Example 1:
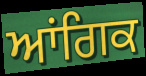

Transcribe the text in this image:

ਆਂਗਿਕ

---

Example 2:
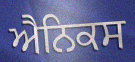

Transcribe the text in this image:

ਐਨਿਕਸ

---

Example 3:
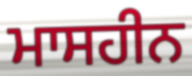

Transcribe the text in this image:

ਮਾਸਹੀਨ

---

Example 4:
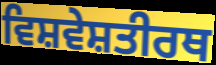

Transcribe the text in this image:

ਵਿਸ਼ਵੇਸ਼ਤੀਰਥ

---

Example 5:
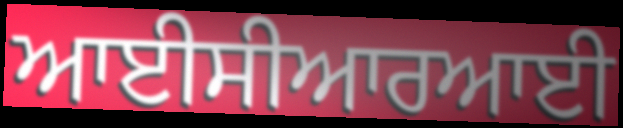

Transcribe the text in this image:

ਆਈਸੀਆਰਆਈ